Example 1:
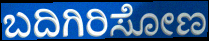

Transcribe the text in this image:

ಬದಿಗಿರಿಸೋಣ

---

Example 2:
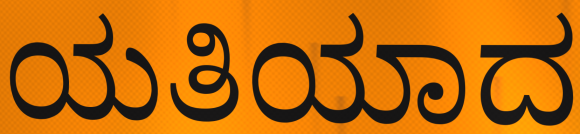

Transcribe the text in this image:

ಯತಿಯಾದ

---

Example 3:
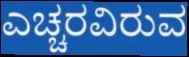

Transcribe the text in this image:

ಎಚ್ಚರವಿರುವ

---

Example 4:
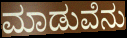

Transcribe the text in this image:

ಮಾಡುವೆನು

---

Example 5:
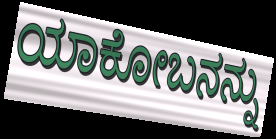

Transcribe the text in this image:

ಯಾಕೋಬನನ್ನು